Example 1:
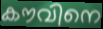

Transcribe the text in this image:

കൗവിനെ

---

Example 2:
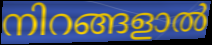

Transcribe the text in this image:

നിറങ്ങളാൽ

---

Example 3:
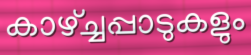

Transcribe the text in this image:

കാഴ്ച്ചപ്പാടുകളും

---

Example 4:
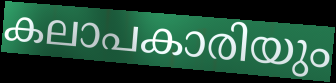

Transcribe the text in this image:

കലാപകാരിയും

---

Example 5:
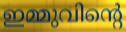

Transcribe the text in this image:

ഇമ്മുവിന്റെ